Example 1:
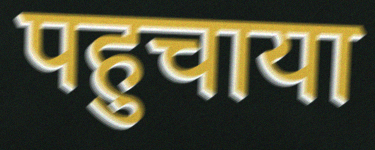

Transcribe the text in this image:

पहुचाया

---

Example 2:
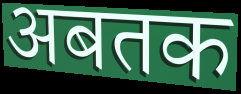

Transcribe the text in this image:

अबतक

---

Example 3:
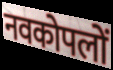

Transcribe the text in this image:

नवकोपलों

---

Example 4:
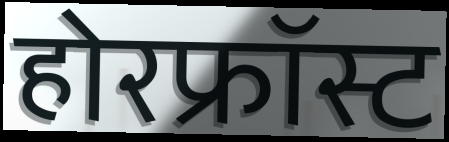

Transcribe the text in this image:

होरफ्रॉस्ट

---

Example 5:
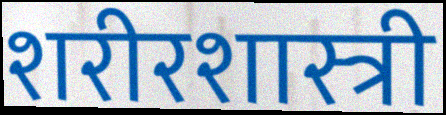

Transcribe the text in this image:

शरीरशास्त्री